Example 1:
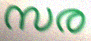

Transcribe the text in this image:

സര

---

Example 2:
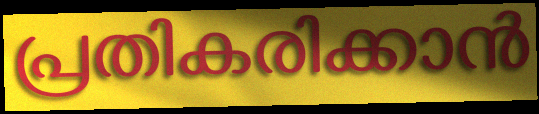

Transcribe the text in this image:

പ്രതികരിക്കാൻ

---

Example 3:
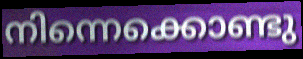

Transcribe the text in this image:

നിന്നെക്കൊണ്ടു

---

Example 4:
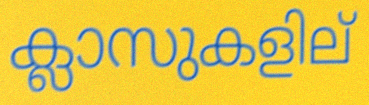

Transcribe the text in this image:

ക്ലാസുകളില്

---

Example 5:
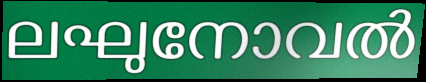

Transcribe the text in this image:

ലഘുനോവൽ